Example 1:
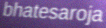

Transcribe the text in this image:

bhatesaroja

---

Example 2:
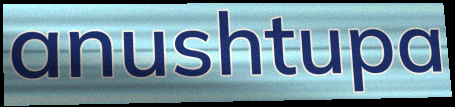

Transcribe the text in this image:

anushtupa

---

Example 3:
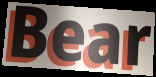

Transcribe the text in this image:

Bear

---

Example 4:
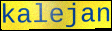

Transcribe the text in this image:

kalejan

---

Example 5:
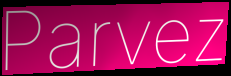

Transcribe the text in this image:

Parvez